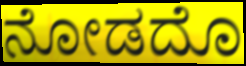
ನೋಡದೊ